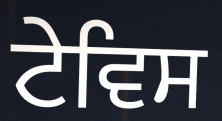
ਟੇਵਿਸ